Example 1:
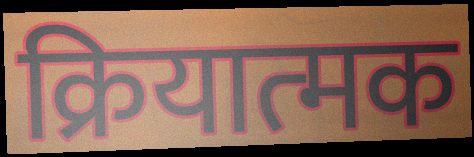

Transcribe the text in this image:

क्रियात्‍मक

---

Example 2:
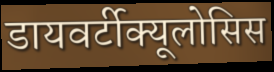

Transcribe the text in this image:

डायवर्टीक्यूलोसिस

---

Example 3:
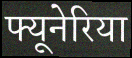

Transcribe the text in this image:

फ्यूनेरिया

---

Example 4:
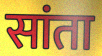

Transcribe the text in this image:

सांता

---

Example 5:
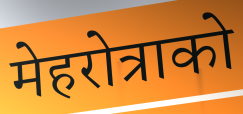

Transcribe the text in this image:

मेहरोत्राको